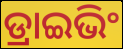
ଡ୍ରାଇଭିଂ